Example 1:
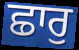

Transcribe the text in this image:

ਛਾਰੁ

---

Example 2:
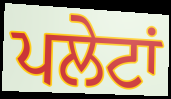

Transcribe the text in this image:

ਪਲੇਟਾਂ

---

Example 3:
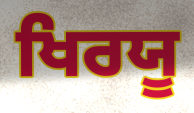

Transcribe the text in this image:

ਖਿਰਯੂ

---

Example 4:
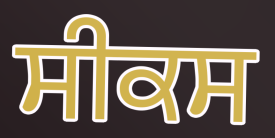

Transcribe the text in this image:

ਸੀਕਸ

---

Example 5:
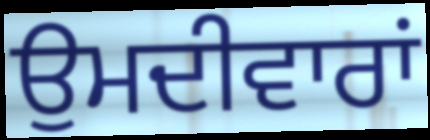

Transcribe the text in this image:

ਉਮਦੀਵਾਰਾਂ